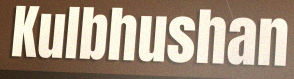
Kulbhushan